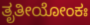
ತೃತೀಯೋಂಕಃ